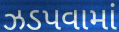
ઝડપવામાં